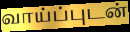
வாய்ப்புடன்